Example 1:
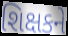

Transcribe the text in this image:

શિક્ષકને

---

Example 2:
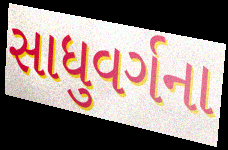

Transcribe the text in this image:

સાધુવર્ગના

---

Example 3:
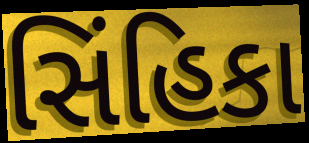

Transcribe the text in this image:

સિંહિકા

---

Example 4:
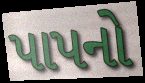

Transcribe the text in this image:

પાપનો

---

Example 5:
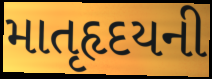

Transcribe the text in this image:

માતૃહૃદયની